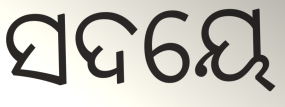
ସଦୟେ